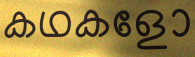
കഥകളോ